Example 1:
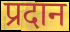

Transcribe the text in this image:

प्रदान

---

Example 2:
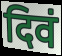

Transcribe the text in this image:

दिवं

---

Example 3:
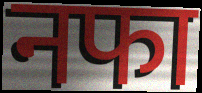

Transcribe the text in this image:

नफा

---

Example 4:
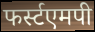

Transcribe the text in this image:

फर्स्टएमपी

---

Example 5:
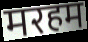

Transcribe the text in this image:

मरहम